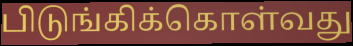
பிடுங்கிக்கொள்வது